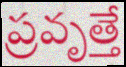
ప్రవృత్తే